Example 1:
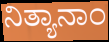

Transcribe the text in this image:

ನಿತ್ಯಾನಾಂ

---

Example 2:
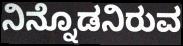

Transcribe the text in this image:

ನಿನ್ನೊಡನಿರುವ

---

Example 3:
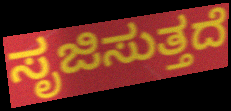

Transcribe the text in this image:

ಸೃಜಿಸುತ್ತದೆ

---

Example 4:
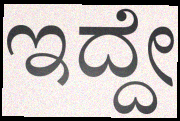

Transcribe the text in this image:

ಇದ್ದೇ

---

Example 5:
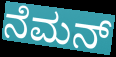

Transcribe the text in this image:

ನೆಮನ್